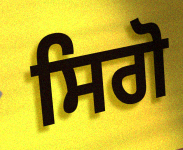
ਸਿਗੋ